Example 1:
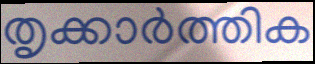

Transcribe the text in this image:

തൃക്കാർത്തിക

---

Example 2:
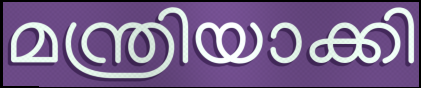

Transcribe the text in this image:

മന്ത്രിയാക്കി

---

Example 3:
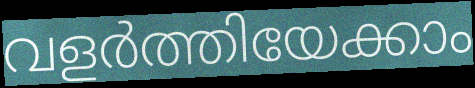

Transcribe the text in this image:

വളർത്തിയേക്കാം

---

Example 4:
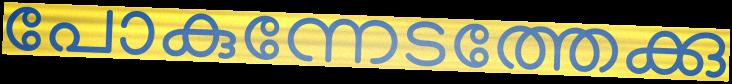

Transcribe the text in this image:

പോകുന്നേടത്തേക്കു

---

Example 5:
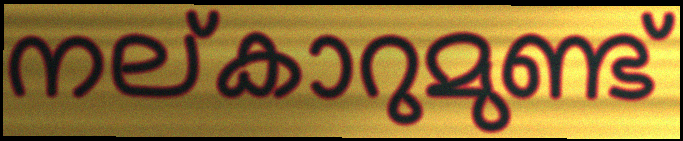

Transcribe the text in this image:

നല്കാറുമുണ്ട്